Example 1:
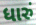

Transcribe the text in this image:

ધારું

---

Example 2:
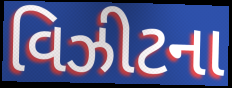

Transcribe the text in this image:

વિઝીટના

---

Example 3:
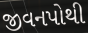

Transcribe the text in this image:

જીવનપોથી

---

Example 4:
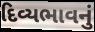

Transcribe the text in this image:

દિવ્યભાવનું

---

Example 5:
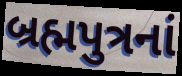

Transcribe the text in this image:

બ્રહ્મપુત્રનાં